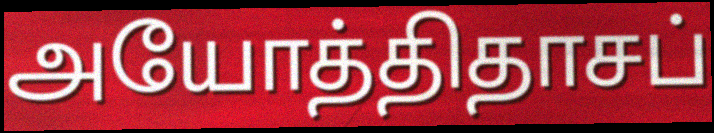
அயோத்திதாசப்